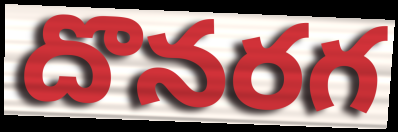
దొనరగ